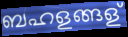
ബഹളങ്ങള്